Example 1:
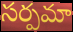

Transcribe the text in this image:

సర్పమా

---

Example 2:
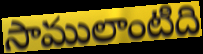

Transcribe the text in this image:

సాములాంటిది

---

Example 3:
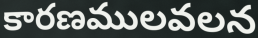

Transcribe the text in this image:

కారణములవలన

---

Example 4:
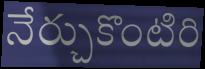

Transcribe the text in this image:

నేర్చుకొంటిరి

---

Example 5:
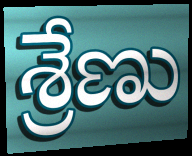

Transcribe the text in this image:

శ్రేణు